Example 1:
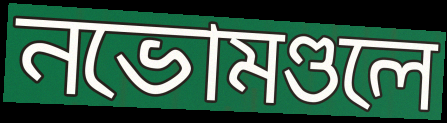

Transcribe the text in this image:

নভোমণ্ডলে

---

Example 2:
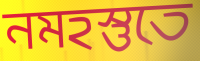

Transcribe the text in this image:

নমহস্তুতে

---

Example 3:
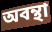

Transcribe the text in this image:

অবন্থা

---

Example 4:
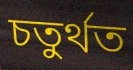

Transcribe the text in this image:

চতুর্থত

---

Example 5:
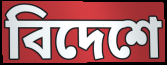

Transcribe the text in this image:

বিদেশে